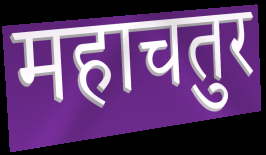
महाचतुर